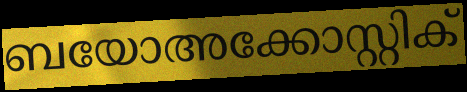
ബയോഅക്കോസ്റ്റിക്